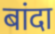
बांदा